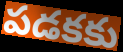
పడకకు